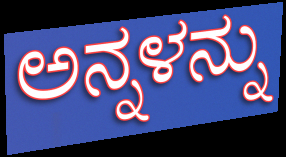
ಅನ್ನಳನ್ನು